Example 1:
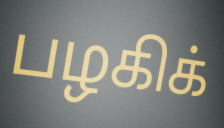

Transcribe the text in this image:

பழகிக்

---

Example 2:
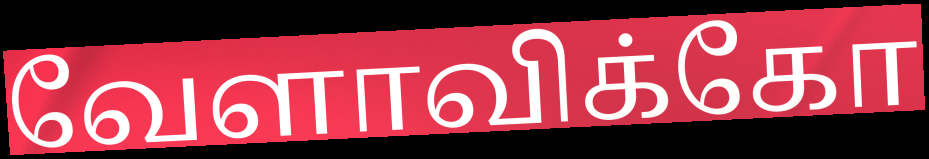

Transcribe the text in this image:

வேளாவிக்கோ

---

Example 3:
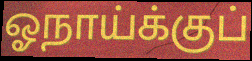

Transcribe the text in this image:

ஓநாய்க்குப்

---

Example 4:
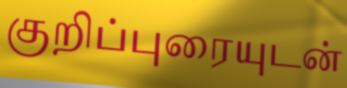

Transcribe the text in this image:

குறிப்புரையுடன்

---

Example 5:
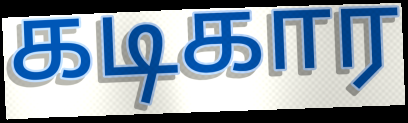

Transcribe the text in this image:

கடிகார